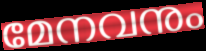
മേനവനും